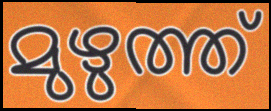
മുഴുത്ത്